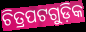
ଚିତ୍ରପଟଗୁଡ଼ିକ